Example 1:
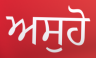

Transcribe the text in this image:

ਅਸੁਹੋ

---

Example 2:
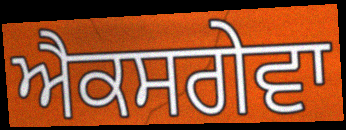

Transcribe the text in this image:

ਐਕਸਗੇਵਾ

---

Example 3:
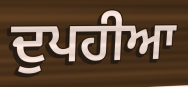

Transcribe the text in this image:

ਦੁਪਹੀਆ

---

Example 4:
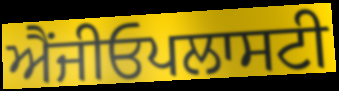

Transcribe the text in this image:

ਐਂਜੀਓਪਲਾਸਟੀ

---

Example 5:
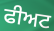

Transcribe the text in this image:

ਫੀਅਟ